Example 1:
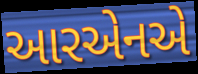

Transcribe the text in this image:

આરએનએ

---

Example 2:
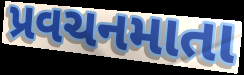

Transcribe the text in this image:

પ્રવચનમાતા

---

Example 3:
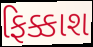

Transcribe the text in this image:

ફિક્કાશ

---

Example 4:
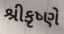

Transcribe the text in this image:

શ્રીકૃષ્ણે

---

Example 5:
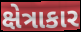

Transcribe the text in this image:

ક્ષેત્રાકાર